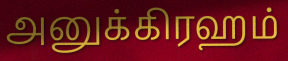
அனுக்கிரஹம்